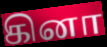
கினா